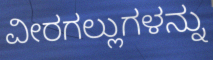
ವೀರಗಲ್ಲುಗಳನ್ನು